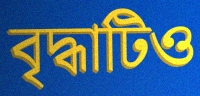
বৃদ্ধাটিও